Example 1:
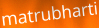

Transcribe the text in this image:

matrubharti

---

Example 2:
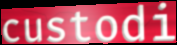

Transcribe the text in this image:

custodi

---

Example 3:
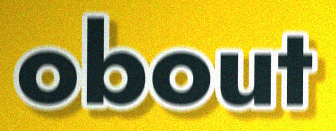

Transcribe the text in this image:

obout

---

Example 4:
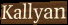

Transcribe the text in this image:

Kallyan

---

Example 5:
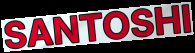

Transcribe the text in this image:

SANTOSHI